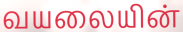
வயலையின்